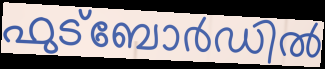
ഫുട്ബോർഡിൽ